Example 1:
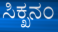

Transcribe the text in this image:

ಸಿಕ್ಖನಂ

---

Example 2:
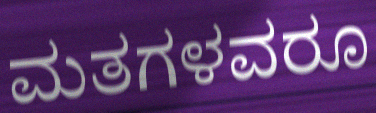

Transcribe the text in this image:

ಮತಗಳವರೂ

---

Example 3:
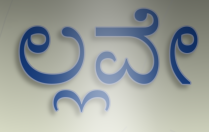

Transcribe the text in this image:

ಲ್ಲವೇ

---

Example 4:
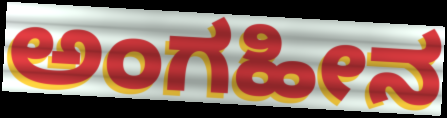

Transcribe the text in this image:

ಅಂಗಹೀನ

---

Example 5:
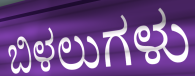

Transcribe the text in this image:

ಬಿಳಲುಗಳು